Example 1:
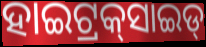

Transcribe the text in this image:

ହାଇଟ୍ରକ୍‌ସାଇଡ୍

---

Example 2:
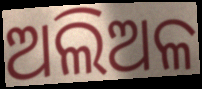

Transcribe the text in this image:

ଅଲିଅଳ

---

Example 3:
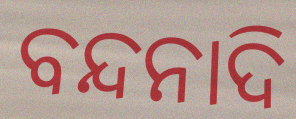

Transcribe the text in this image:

ବନ୍ଦନାଦି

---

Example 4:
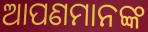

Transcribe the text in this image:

ଆପଣମାନଙ୍କ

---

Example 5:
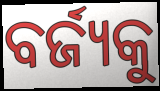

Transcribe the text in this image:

ବର୍ଜ୍ୟକୁ